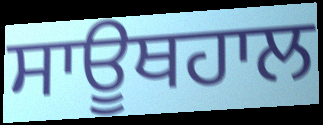
ਸਾਊਥਹਾਲ